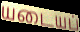
யடையப்